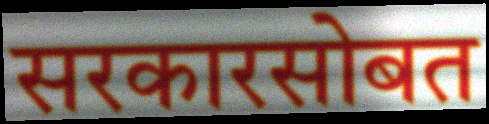
सरकारसोबत